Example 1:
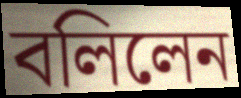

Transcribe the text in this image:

বলিলেন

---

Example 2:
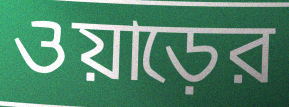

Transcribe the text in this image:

ওয়াড়ের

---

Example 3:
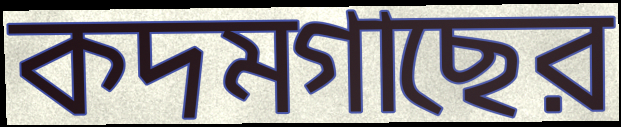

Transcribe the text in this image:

কদমগাছের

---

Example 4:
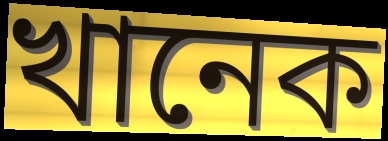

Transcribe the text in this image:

খানেক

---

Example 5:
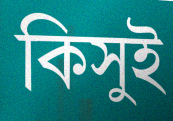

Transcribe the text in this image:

কিসুই